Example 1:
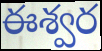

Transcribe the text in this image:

ఈశ్వర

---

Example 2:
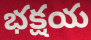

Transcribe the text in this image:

భక్షయ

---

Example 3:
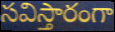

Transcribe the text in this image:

సవిస్తారంగా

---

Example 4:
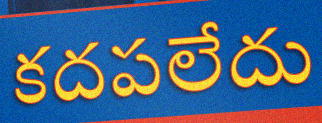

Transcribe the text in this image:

కదపలేదు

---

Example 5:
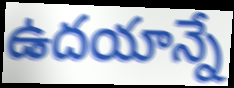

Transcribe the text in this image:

ఉదయాన్నే